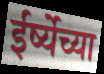
ईर्ष्येच्या